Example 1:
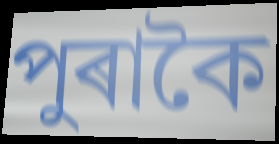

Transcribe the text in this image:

পুৰাকৈ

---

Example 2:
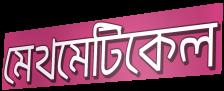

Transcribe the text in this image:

মেথমেটিকেল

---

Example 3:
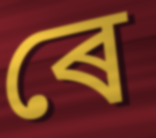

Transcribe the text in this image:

ৰে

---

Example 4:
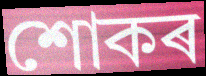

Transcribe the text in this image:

শোকৰ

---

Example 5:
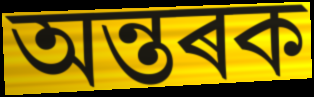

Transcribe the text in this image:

অন্তৰক